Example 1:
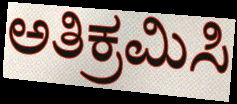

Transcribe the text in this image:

ಅತಿಕ್ರಮಿಸಿ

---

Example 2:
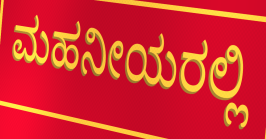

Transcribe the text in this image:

ಮಹನೀಯರಲ್ಲಿ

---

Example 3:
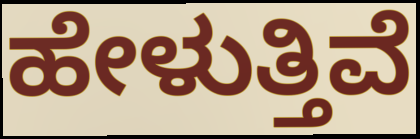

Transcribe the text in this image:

ಹೇಳುತ್ತಿವೆ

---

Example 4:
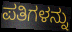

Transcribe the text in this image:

ಪತಿಗಳನ್ನು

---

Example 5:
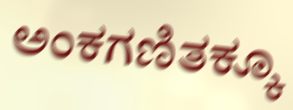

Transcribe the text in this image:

ಅಂಕಗಣಿತಕ್ಕೂ